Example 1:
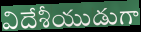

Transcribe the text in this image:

విదేశీయుడుగా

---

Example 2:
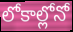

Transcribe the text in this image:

లోకాల్లోనో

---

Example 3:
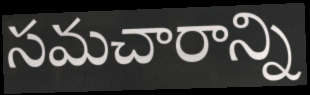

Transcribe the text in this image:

సమచారాన్ని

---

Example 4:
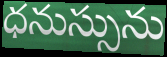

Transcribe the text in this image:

ధనుస్సును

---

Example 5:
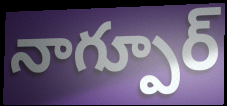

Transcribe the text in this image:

నాగ్పూర్